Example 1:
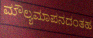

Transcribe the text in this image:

ಮೌಲ್ಯಮಾಪನದಂತಹ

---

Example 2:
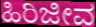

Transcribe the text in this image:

ಹಿರಿಜೀವ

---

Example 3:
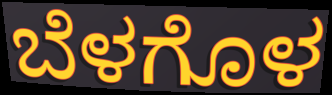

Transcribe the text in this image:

ಬೆಳಗೊಳ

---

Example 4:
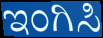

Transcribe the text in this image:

ಇಂಗಿಸಿ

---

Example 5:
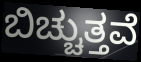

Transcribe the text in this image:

ಬಿಚ್ಚುತ್ತವೆ